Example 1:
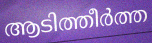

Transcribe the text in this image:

ആടിത്തീർത്ത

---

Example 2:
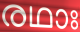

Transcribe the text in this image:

രഥാഃ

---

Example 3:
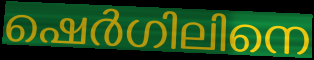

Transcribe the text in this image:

ഷെർഗിലിനെ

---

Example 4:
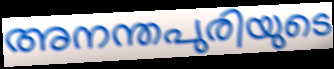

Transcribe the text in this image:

അനന്തപുരിയുടെ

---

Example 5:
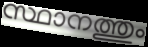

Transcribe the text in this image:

സ്ഥാനത്തും